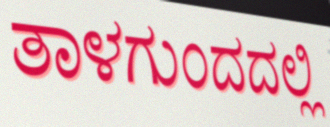
ತಾಳಗುಂದದಲ್ಲಿ